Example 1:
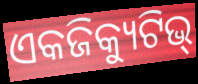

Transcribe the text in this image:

ଏକଜିକ୍ୟୁଟିଭ୍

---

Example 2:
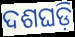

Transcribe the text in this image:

ଦଶଘଡ଼ି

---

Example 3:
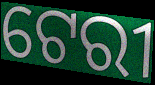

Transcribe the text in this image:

ଟେରୀ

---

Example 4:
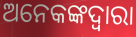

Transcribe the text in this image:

ଅନେକଙ୍କଦ୍ୱାରା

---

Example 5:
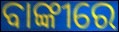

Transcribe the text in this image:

ବାଙ୍କୀରେ